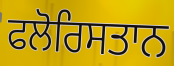
ਫਲੋਰਿਸਤਾਨ